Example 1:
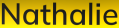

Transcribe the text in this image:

Nathalie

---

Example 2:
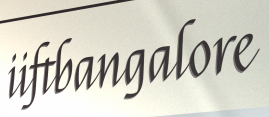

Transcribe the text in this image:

iiftbangalore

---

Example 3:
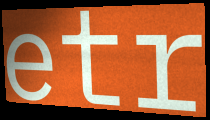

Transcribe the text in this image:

etr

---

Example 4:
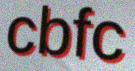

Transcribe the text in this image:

cbfc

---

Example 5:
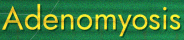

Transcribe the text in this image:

Adenomyosis